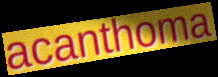
acanthoma